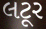
લટૂર